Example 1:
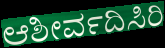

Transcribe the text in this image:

ಆಶೀರ್ವದಿಸಿರಿ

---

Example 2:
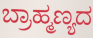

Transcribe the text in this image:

ಬ್ರಾಹ್ಮಣ್ಯದ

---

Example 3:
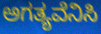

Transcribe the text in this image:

ಅಗತ್ಯವೆನಿಸಿ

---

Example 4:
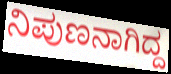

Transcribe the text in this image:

ನಿಪುಣನಾಗಿದ್ದ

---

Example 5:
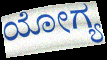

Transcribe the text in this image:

ಯೋಗ್ಯ